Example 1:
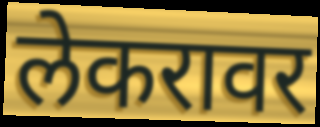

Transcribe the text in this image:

लेकरावर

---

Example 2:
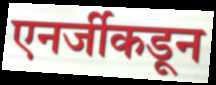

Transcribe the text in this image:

एनर्जीकडून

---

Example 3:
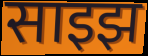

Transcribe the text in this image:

साइझ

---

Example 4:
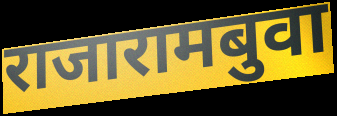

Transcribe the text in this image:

राजारामबुवा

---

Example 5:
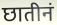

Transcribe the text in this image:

छातीनं